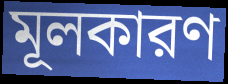
মূলকারণ